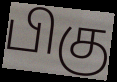
பிகு